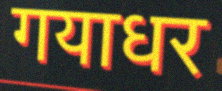
गयाधर